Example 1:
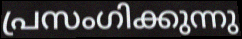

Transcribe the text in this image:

പ്രസംഗിക്കുന്നു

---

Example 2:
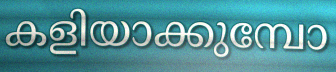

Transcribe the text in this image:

കളിയാക്കുമ്പോ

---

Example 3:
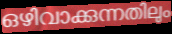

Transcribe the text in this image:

ഒഴിവാക്കുന്നതിലും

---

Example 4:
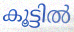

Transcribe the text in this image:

കൂട്ടിൽ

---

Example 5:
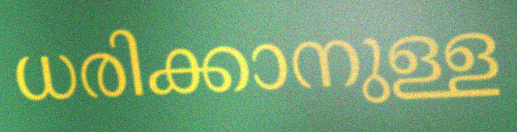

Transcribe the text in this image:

ധരിക്കാനുള്ള